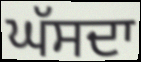
ਘੱਸਦਾ